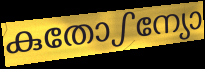
കുതോഽന്യോ